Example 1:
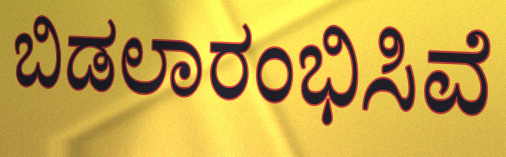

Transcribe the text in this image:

ಬಿಡಲಾರಂಭಿಸಿವೆ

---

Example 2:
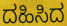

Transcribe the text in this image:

ದಹಿಸಿದ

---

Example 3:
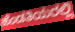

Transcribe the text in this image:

ಹೆಂಡತಿಯರಲ್ಲಿ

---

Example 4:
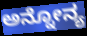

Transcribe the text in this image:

ಅನ್ನೋನ್ಯ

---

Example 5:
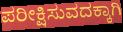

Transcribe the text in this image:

ಪರೀಕ್ಷಿಸುವದಕ್ಕಾಗಿ